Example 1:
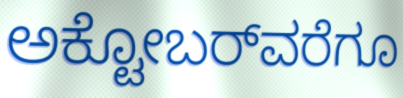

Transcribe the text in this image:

ಅಕ್ಟೋಬರ್‌ವರೆಗೂ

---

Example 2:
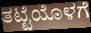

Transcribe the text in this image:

ತಟ್ಟೆಯೊಳಗೆ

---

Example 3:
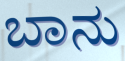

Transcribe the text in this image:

ಬಾನು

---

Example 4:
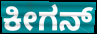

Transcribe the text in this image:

ಕೀಗನ್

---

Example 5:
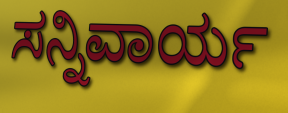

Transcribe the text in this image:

ಸನ್ನಿವಾರ್ಯ